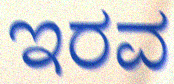
ಇರವ